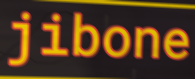
jibone